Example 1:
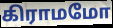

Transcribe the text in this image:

கிராமமோ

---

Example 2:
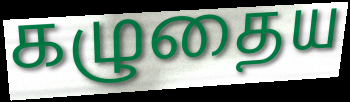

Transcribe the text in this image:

கழுதைய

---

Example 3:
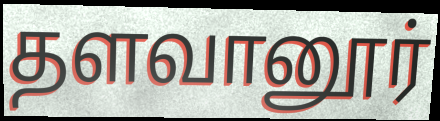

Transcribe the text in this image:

தளவானூர்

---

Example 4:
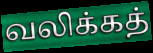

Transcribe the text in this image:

வலிக்கத்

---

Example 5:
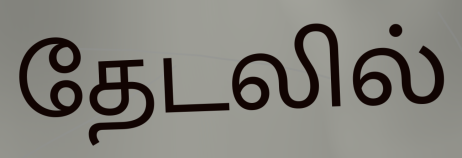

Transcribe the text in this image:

தேடலில்